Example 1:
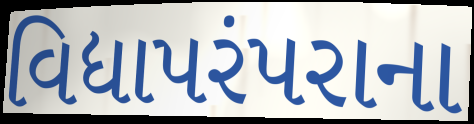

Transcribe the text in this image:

વિદ્યાપરંપરાના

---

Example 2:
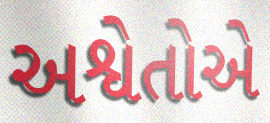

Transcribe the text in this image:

અશ્વેતોએ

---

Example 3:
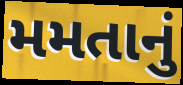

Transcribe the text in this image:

મમતાનું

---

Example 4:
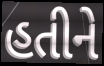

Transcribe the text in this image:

હતીને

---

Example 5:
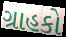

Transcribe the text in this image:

ગ્રાહકો